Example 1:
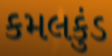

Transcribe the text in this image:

કમલકુંડ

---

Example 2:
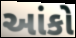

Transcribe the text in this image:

આંકો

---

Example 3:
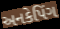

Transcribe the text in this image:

અનકેપિંગ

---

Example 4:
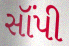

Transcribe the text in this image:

સૉંપી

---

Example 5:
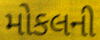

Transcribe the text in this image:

મોકલની